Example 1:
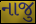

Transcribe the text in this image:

નાજુ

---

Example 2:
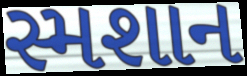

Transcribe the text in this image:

સ્મશાન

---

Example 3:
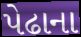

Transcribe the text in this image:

પેઢાના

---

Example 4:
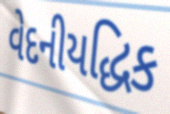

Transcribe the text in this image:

વેદનીયદ્ધિક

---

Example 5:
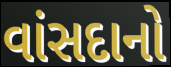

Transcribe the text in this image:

વાંસદાનો